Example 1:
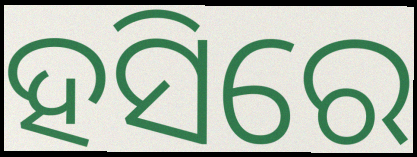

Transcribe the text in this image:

ହସିରେ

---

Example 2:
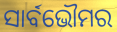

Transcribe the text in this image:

ସାର୍ବଭୌମର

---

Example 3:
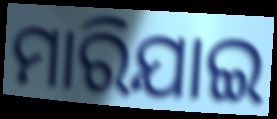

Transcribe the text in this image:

ମାରିଯାଇ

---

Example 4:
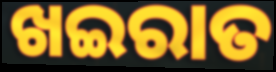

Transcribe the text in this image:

ଖଇରାତ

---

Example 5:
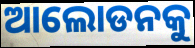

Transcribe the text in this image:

ଆଲୋଡନକୁ